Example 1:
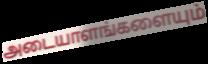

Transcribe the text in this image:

அடையாளங்களையும்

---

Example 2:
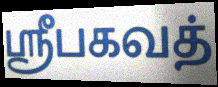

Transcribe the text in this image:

ஸ்ரீபகவத்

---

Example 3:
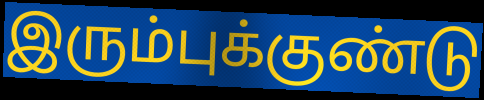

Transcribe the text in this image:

இரும்புக்குண்டு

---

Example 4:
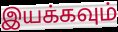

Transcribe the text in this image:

இயக்கவும்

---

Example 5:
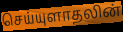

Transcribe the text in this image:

செய்யுளாதலின்